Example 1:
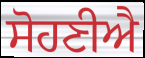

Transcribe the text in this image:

ਸੋਹਣੀਐ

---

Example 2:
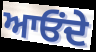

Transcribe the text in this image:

ਆਓਂਦੇ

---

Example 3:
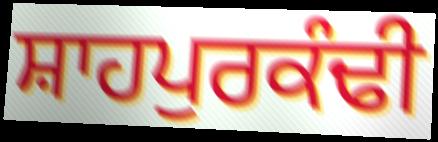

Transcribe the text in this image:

ਸ਼ਾਹਪੁਰਕੰਢੀ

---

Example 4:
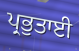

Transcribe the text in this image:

ਪ੍ਰਭੁਤਾਈ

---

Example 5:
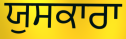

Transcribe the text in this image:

ਯੁਸਕਾਰਾ